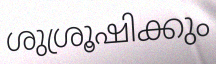
ശുശ്രൂഷിക്കും